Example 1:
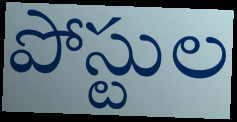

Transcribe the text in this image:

పోస్టుల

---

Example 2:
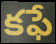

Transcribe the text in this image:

కఫే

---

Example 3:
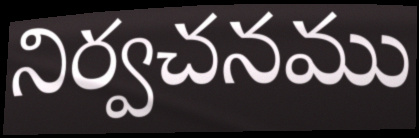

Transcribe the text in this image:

నిర్వచనము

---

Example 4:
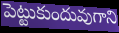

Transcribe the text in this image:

పెట్టుకుందువుగాని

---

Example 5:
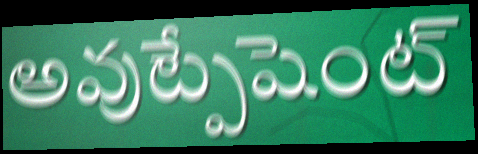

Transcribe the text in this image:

అవుట్పేషెంట్